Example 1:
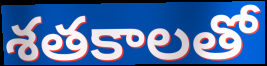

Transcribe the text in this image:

శతకాలతో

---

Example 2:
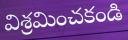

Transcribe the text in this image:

విశ్రమించకండి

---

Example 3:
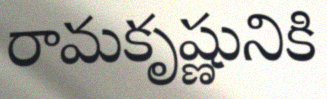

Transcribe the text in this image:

రామకృష్ణునికి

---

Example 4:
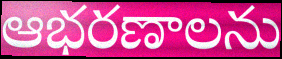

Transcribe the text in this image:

ఆభరణాలను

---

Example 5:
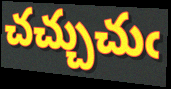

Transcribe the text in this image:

చచ్చుచుఁ